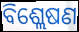
ବିଶ୍ଲେଷଣ